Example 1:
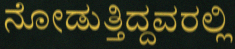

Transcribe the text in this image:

ನೋಡುತ್ತಿದ್ದವರಲ್ಲಿ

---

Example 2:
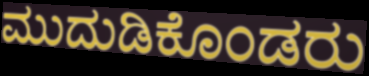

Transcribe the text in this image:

ಮುದುಡಿಕೊಂಡರು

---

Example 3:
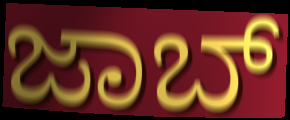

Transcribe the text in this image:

ಜಾಬ್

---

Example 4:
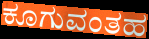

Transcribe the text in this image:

ಕೂಗುವಂತಹ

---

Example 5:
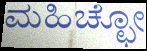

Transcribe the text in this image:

ಮಹಿಚ್ಛೋ